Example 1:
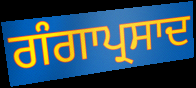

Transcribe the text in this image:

ਗੰਗਾਪ੍ਰਸਾਦ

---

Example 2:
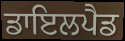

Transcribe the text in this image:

ਡਾਇਲਪੈਡ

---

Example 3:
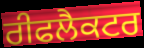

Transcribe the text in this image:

ਰੀਫਲੈਕਟਰ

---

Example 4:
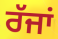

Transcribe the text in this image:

ਰੱਜਾਂ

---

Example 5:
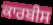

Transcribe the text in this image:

ਕਾਰਬੀਸ